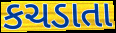
કચડાતા